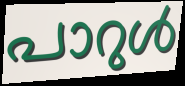
പാറുൾ